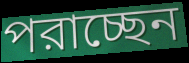
পরাচ্ছেন